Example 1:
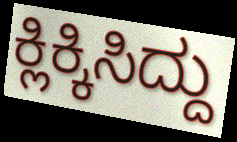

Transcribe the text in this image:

ಕ್ಲಿಕ್ಕಿಸಿದ್ದು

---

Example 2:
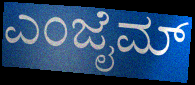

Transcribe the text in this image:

ಎಂಜೈಮ್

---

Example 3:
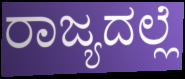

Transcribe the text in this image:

ರಾಜ್ಯದಲ್ಲೆ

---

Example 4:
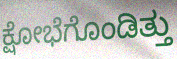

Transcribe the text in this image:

ಕ್ಷೋಭೆಗೊಂಡಿತ್ತು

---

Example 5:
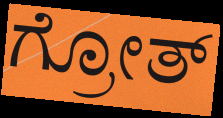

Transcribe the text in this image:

ಗ್ರೋತ್